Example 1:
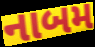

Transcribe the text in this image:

નાબમ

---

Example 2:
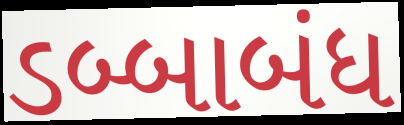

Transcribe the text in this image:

ડબ્બાબંધ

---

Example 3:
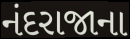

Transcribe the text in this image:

નંદરાજાના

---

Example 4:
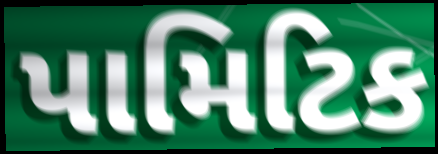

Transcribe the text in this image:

પામિટિક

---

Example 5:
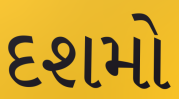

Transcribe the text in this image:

દશમો